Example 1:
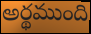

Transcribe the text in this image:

అర్థముంది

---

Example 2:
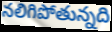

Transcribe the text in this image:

నలిగిపోతున్నది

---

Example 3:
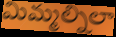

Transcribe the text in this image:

మిమ్మల్నిలా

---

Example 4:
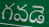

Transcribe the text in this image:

గవడె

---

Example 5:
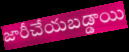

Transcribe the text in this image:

జారీచేయబడ్డాయి